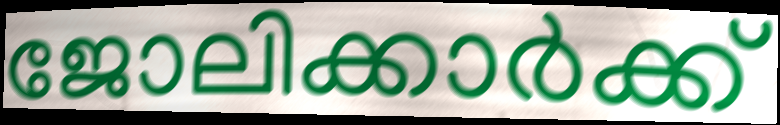
ജോലിക്കാർക്ക്